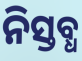
ନିସ୍ତବ୍ଧ